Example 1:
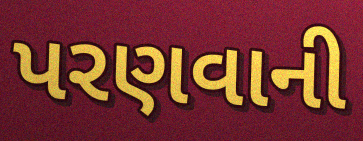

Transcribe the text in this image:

પરણવાની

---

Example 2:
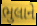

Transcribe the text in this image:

ભુલાને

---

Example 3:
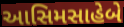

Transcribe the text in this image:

આસિમસાહેબે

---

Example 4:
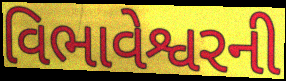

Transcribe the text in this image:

વિભાવેશ્વરની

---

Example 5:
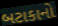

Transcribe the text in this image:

બટાકાનો